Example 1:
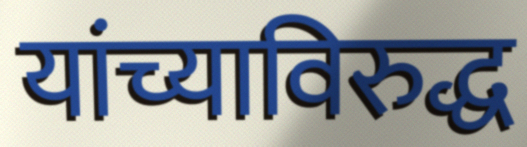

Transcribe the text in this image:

यांच्याविरुद्ध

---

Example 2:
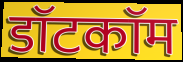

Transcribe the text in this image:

डॉटकॉम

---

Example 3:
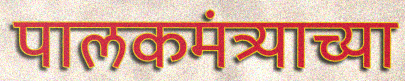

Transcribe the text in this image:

पालकमंत्र्याच्या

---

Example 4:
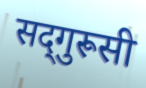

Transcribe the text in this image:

सद्‍गुरूसी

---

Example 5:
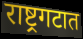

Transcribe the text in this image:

राष्ट्रगटात